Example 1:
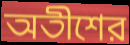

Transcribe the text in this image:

অতীশের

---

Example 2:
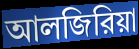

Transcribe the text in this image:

আলজিরিয়া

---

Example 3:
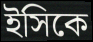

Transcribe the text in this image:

ইসিকে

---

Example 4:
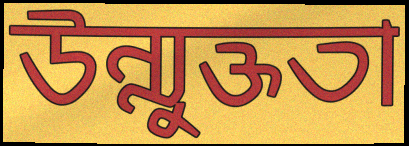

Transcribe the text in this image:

উন্মুক্ততা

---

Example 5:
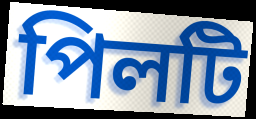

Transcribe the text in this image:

পিলটি